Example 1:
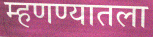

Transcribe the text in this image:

म्हणण्यातला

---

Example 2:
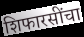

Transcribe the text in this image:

शिफारसींचा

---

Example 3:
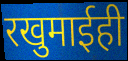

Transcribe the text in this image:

रखुमाईही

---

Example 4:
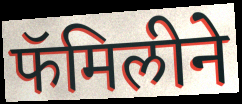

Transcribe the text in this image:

फॅमिलीने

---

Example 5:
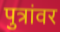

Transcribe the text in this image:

पुत्रांवर